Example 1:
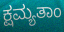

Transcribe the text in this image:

ಕ್ಷಮ್ಯತಾಂ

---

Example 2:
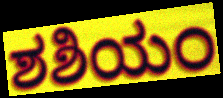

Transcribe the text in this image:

ಶಶಿಯಂ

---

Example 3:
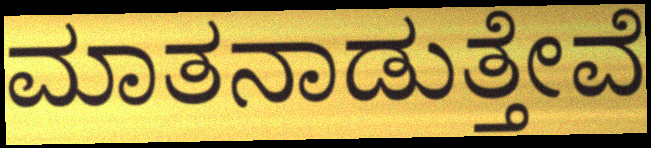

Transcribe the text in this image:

ಮಾತನಾಡುತ್ತೇವೆ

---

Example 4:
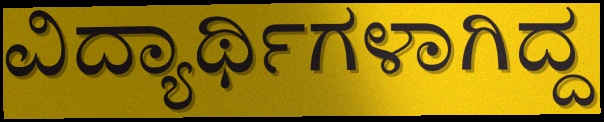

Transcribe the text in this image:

ವಿದ್ಯಾರ್ಥಿಗಳಾಗಿದ್ದ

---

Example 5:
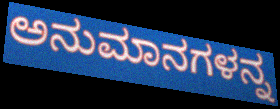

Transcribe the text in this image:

ಅನುಮಾನಗಳನ್ನ